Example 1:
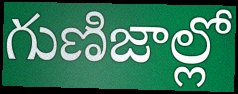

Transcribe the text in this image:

గుణిజాల్లో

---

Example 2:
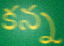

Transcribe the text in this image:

కన్న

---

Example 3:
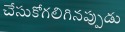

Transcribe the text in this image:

చేసుకోగలిగినప్పుడు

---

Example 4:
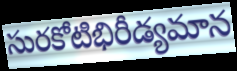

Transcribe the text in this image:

సురకోటిభిరీడ్యమాన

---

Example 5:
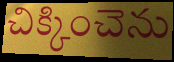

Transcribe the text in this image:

చిక్కించెను